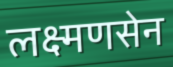
लक्ष्मणसेन